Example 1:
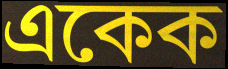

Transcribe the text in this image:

একেক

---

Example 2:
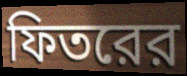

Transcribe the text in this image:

ফিতরের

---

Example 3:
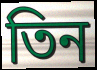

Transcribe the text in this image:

তিন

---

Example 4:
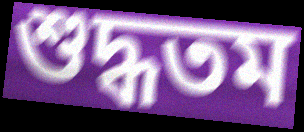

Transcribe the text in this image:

শুদ্ধতম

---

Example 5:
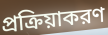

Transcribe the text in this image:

প্রক্রিয়াকরণ